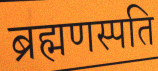
ब्रह्मणस्पति